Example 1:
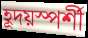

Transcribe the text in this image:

হূদয়স্পর্শী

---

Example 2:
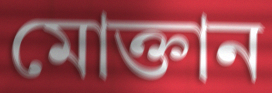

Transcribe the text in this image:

মোক্তান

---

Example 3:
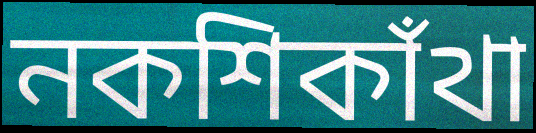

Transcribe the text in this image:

নকশিকাঁথা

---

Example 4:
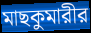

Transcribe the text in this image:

মাছকুমারীর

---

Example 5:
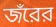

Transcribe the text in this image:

জঁরের